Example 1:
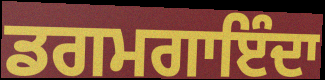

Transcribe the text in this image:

ਡਗਮਗਾਇੰਦਾ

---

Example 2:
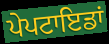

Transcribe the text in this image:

ਪੇਪਟਾਇਡਾਂ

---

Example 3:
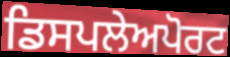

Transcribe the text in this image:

ਡਿਸਪਲੇਅਪੋਰਟ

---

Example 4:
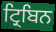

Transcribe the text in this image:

ਟ੍ਰਿਬਿਨ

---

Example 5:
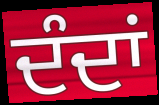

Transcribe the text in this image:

ਦੰਦਾਂ